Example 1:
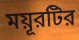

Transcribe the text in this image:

ময়ূরটির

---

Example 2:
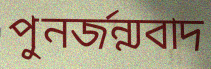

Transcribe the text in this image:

পুনর্জন্মবাদ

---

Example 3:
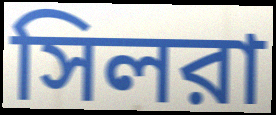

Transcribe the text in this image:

সিলরা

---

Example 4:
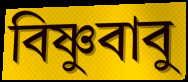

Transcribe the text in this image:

বিষ্ণুবাবু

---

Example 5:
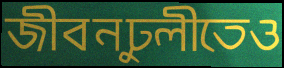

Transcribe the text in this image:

জীবনঢুলীতেও